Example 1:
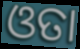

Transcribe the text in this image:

ଓତା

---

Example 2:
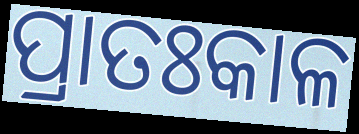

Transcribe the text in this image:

ପ୍ରାତଃକାଳ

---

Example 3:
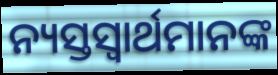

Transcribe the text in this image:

ନ୍ୟସ୍ତସ୍ଵାର୍ଥମାନଙ୍କ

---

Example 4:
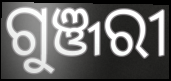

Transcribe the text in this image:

ଗୁଞ୍ଜରୀ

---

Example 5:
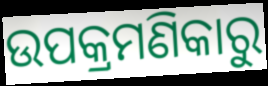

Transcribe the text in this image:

ଉପକ୍ରମଣିକାରୁ